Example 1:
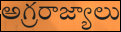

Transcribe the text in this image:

అగ్రరాజ్యాలు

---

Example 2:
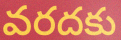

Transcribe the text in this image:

వరదకు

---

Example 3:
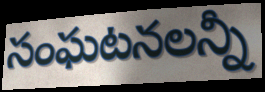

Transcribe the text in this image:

సంఘటనలన్నీ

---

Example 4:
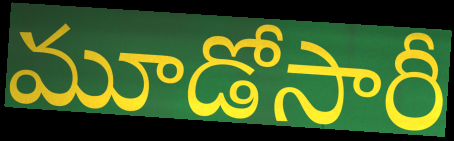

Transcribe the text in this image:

మూడోసారీ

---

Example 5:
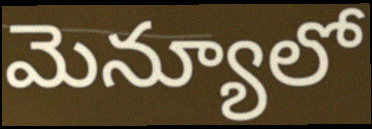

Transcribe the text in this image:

మెన్యూలో